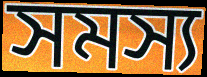
সমস্য